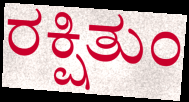
ರಕ್ಷಿತುಂ